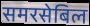
समरसेबिल